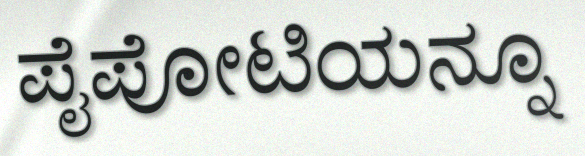
ಪೈಪೋಟಿಯನ್ನೂ